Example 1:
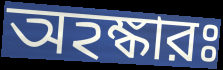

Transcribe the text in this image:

অহঙ্কারঃ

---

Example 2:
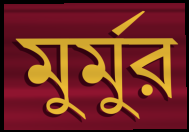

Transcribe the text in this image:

মুর্মুর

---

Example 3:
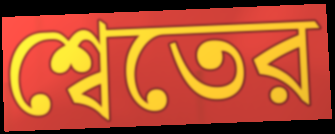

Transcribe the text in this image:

শ্বেতের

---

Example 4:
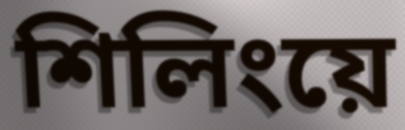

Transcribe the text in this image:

শিলিংয়ে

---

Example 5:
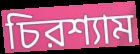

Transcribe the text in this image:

চিরশ্যাম